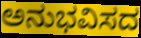
ಅನುಭವಿಸದ